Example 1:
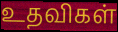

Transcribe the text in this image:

உதவிகள்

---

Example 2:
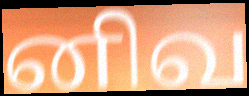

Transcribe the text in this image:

னிவ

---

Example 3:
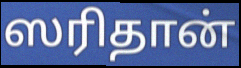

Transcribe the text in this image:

ஸரிதான்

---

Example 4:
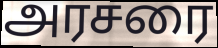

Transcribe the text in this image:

அரசரை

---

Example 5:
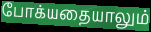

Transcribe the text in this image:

போக்யதையாலும்